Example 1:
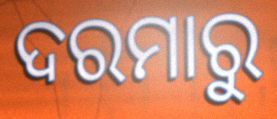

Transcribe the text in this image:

ଦରମାରୁ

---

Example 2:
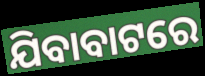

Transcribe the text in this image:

ଯିବାବାଟରେ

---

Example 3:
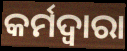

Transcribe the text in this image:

କର୍ମଦ୍ୱାରା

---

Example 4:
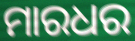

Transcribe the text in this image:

ମାରଧର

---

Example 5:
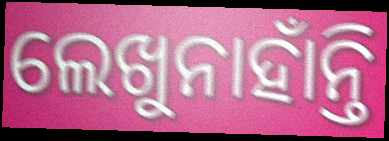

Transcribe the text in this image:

ଲେଖୁନାହାଁନ୍ତି